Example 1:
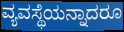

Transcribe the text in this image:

ವ್ಯವಸ್ಥೆಯನ್ನಾದರೂ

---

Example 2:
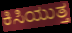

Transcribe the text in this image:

ಕಿಸಿಯುತ್ತ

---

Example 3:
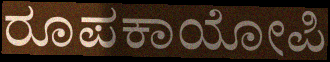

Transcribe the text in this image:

ರೂಪಕಾಯೋಪಿ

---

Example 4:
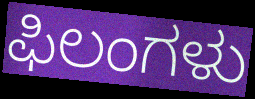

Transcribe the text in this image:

ಫಿಲಂಗಳು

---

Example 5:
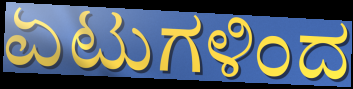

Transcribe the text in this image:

ಏಟುಗಳಿಂದ